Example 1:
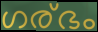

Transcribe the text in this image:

ഗര്ഭം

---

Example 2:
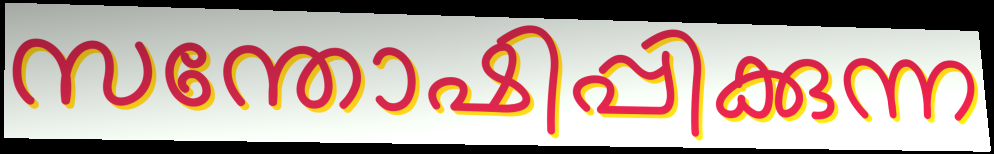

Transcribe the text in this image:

സന്തോഷിപ്പിക്കുന്ന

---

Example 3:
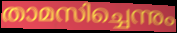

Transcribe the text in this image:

താമസിച്ചെന്നും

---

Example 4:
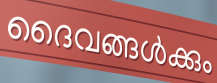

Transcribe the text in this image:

ദൈവങ്ങൾക്കും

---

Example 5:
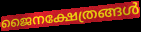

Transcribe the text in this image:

ജൈനക്ഷേത്രങ്ങൾ